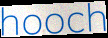
hooch